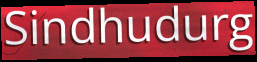
Sindhudurg